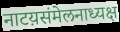
नाटय़संमेलनाध्यक्ष